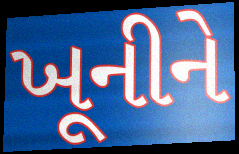
ખૂનીને